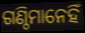
ଗଣ୍ଠିମାନେହିଁ